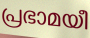
പ്രഭാമയീ